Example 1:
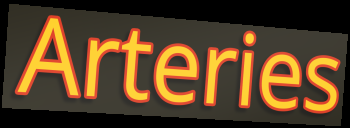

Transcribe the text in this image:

Arteries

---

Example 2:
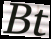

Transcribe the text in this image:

Bt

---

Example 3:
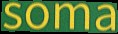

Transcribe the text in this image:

soma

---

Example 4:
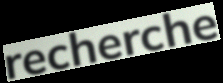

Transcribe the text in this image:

recherche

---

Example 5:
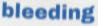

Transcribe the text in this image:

bleeding